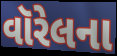
વૉરેલના